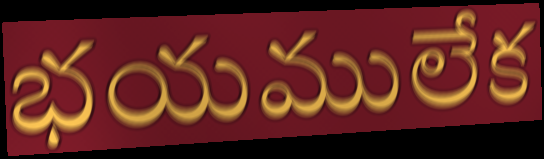
భయములేక